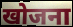
खोजना